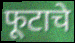
फूटाचे